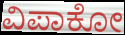
ವಿಪಾಕೋ